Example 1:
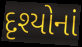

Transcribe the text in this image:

દૃશ્યોનાં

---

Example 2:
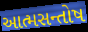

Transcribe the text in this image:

આત્મસન્તોષ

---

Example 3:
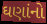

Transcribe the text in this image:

ઘણાંનો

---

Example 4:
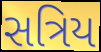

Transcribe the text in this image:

સત્રિય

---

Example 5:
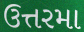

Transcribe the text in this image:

ઉત્તરમા